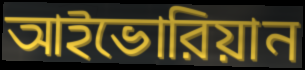
আইভোরিয়ান